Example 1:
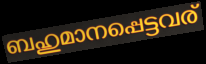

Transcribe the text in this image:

ബഹുമാനപ്പെട്ടവര്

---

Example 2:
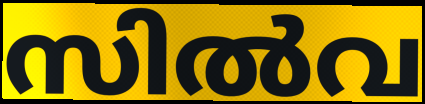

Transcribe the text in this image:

സിൽവ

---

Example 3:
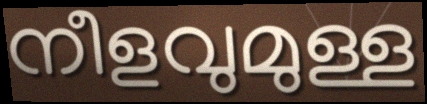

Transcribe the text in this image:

നീളവുമുള്ള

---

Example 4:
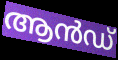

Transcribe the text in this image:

ആൻഡ്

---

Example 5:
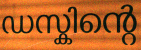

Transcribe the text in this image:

ഡസ്കിന്റെ